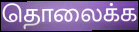
தொலைக்க